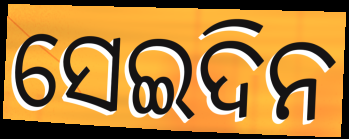
ସେଇଦିନ